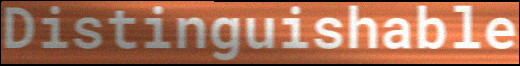
Distinguishable